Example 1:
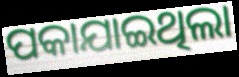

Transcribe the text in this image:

ପକାଯାଇଥିଲା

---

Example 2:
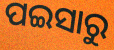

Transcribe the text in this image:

ପଇସାରୁ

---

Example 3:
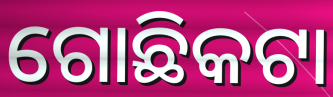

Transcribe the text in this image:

ଗୋଛିକଟା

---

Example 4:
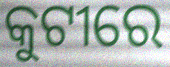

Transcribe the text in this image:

କୁଟୀରେ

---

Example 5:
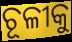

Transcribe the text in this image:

ଚୂଳୀକୁ